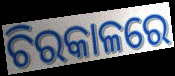
ଚିରକାଳରେ